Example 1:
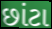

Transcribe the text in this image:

છાંટા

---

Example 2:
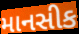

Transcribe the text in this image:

માનસીક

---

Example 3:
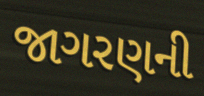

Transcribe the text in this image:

જાગરણની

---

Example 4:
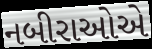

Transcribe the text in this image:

નબીરાઓએ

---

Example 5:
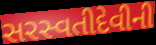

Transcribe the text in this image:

સરસ્વતીદેવીની